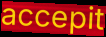
accepit